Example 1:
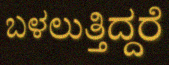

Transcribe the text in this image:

ಬಳಲುತ್ತಿದ್ದರೆ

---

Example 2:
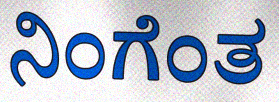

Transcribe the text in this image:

ನಿಂಗೆಂತ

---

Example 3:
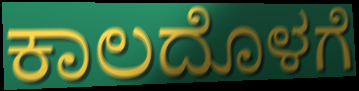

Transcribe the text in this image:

ಕಾಲದೊಳಗೆ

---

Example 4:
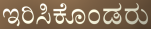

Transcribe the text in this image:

ಇರಿಸಿಕೊಂಡರು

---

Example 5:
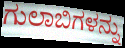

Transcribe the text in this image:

ಗುಲಾಬಿಗಳನ್ನು